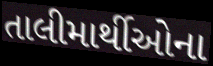
તાલીમાર્થીઓના